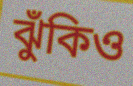
ঝুঁকিও